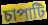
চাপাটি